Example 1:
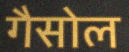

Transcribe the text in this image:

गैसोल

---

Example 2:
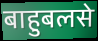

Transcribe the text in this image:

बाहुबलसे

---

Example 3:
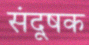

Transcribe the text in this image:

संदूषक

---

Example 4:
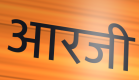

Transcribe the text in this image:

आरजी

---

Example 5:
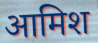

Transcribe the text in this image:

आमिश